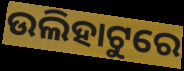
ଉଲିହାଟୁରେ